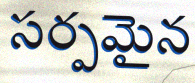
సర్పమైన